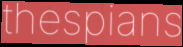
thespians